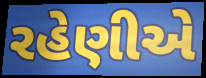
રહેણીએ